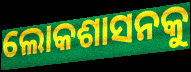
ଲୋକଶାସନକୁ